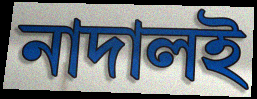
নাদালই